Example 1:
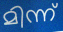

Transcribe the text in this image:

മിന്ന്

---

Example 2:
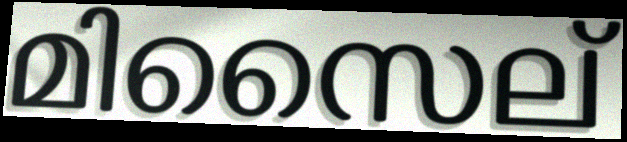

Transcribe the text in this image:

മിസൈല്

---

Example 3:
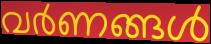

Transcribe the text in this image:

വർണങ്ങൾ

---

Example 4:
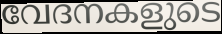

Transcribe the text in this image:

വേദനകളുടെ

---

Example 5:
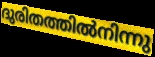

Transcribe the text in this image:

ദുരിതത്തിൽനിന്നു